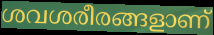
ശവശരീരങ്ങളാണ്